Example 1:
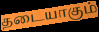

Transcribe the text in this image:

தடையாகும்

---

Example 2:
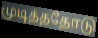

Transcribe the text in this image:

முடித்ததோடு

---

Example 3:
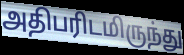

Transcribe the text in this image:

அதிபரிடமிருந்து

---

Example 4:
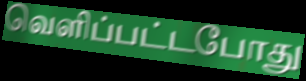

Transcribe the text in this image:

வெளிப்பட்டபோது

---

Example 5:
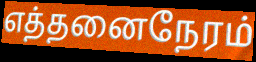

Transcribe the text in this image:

எத்தனைநேரம்